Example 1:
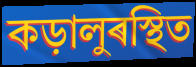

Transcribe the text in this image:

কড়ালুৰস্থিত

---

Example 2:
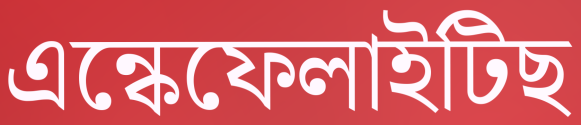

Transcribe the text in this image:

এন্কেফেলাইটিছ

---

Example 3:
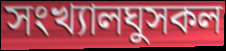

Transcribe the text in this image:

সংখ্যালঘুসকল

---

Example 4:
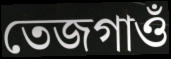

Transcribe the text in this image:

তেজগাওঁ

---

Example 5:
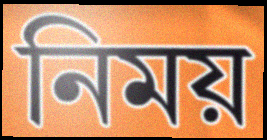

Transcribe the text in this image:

নিময়